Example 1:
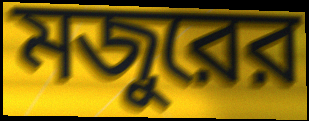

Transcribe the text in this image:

মজুরের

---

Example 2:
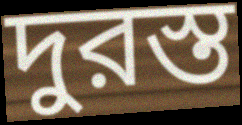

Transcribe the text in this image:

দুরস্ত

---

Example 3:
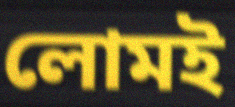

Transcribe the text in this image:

লোমই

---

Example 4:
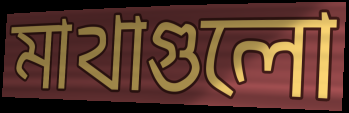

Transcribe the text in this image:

মাথাগুলো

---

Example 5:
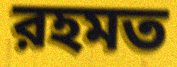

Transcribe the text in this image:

রহমত